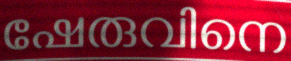
ഷേരുവിനെ